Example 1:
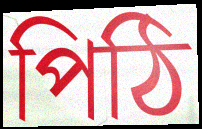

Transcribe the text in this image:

পিঠি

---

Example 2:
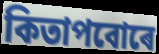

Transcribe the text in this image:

কিতাপবোৰে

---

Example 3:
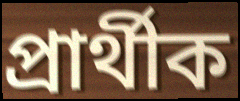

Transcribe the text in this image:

প্ৰাৰ্থীক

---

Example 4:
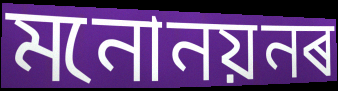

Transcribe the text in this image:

মনোনয়নৰ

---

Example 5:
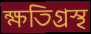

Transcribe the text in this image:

ক্ষতিগ্ৰস্থ